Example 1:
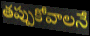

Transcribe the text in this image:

తప్పుకోవాలనే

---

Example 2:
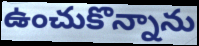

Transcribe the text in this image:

ఉంచుకొన్నాను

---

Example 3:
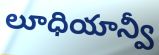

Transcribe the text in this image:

లూధియాన్వీ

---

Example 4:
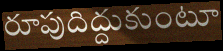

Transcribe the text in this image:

రూపుదిద్దుకుంటూ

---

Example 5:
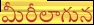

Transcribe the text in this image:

మీరీలాగున